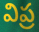
విప్ర